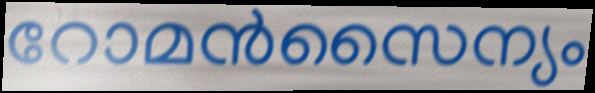
റോമൻസൈന്യം